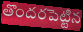
తొందరపెట్టిన